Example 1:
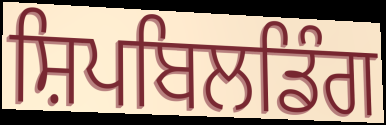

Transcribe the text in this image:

ਸ਼ਿਪਬਿਲਡਿੰਗ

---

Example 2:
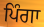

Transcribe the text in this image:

ਪਿੰਗਾ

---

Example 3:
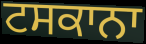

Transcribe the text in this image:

ਟਸਕਾਨਾ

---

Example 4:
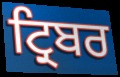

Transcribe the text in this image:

ਟ੍ਰਿਬਰ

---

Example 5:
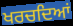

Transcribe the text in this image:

ਖਰਚਦਿਆਂ